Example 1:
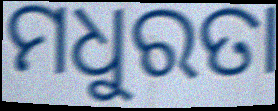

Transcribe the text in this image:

ମଧୁରତା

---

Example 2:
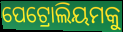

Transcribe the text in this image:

ପେଟ୍ରୋଲିୟମକୁ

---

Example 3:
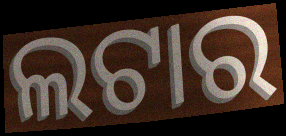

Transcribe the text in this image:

ଲଟାର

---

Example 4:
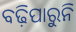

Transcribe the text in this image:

ବଢ଼ିପାରୁନି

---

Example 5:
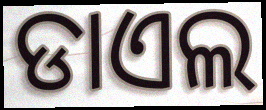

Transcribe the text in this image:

ଡାଏଲ